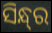
ସିନ୍ଧ୍‌ର